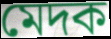
মেদক